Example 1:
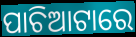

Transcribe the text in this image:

ପାଚିଆଟାରେ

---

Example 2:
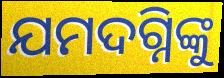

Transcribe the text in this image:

ଯମଦଗ୍ନିଙ୍କୁ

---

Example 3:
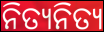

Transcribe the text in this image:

ନିତ୍ୟନିତ୍ୟ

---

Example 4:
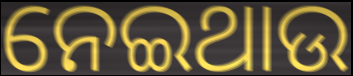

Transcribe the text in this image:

ନେଇଥାଉ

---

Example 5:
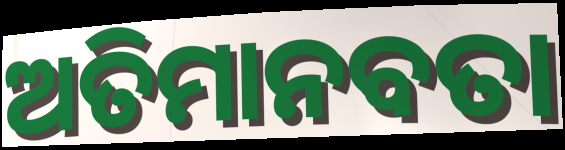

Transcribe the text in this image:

ଅତିମାନବତା